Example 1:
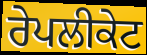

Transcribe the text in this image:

ਰੇਪਲੀਕੇਟ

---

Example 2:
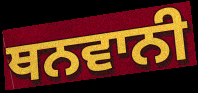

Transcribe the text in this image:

ਥਨਵਾਨੀ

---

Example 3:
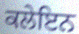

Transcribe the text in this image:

ਕਲੇਇਨ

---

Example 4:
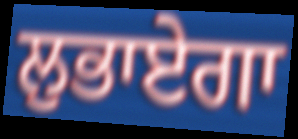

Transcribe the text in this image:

ਲੁਭਾਏਗਾ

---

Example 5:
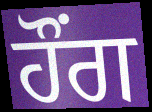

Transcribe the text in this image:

ਹੌਂਗ